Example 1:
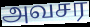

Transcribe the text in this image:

அவசர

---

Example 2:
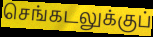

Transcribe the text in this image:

செங்கடலுக்குப்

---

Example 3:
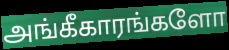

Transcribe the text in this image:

அங்கீகாரங்களோ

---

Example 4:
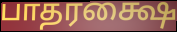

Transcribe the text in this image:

பாதரக்ஷை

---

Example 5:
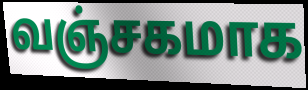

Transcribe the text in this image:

வஞ்சகமாக